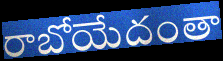
రాబోయేదంతా